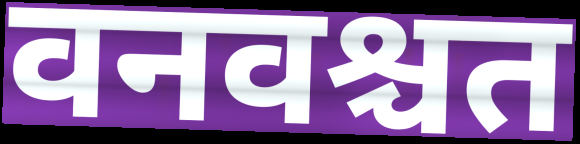
वनवश्चत